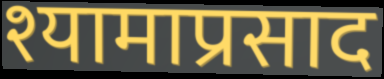
श्यामाप्रसाद